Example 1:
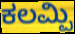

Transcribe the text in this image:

ಕಲಮ್ಪಿ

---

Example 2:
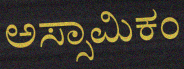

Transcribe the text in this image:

ಅಸ್ಸಾಮಿಕಂ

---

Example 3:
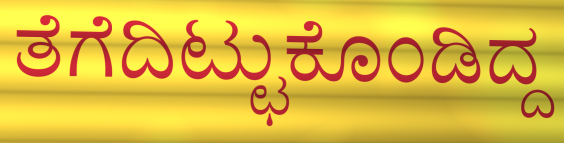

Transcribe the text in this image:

ತೆಗೆದಿಟ್ಟುಕೊಂಡಿದ್ದ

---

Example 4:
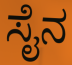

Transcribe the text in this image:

ಸೈನ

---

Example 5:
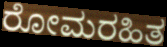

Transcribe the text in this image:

ರೋಮರಹಿತ